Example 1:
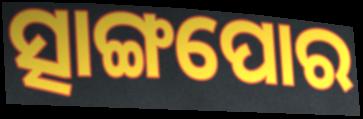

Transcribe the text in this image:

ତ୍ସାଙ୍ଗପୋର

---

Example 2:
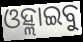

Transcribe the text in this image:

ଓହ୍ଲାଇବୁ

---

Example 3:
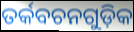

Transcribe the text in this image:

ତର୍କବଚନଗୁଡ଼ିକ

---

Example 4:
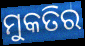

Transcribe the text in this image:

ମୁକତିର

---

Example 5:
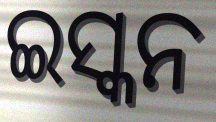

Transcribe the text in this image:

ଇସ୍କନ